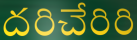
దరిచేరిరి